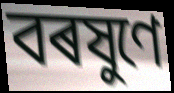
বৰষুণে